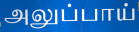
அலுப்பாய்